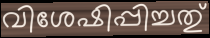
വിശേഷിപ്പിച്ചതു്